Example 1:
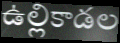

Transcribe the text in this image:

ఉల్లికాడల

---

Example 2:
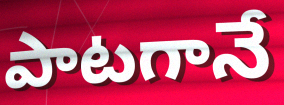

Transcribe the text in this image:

పాటగానే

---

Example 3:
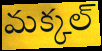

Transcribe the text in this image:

మక్కల్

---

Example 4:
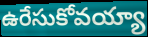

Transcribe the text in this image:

ఉరేసుకోవయ్యా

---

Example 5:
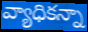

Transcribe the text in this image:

వ్యాధికన్నా